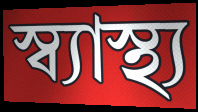
স্ব্যাস্থ্য